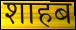
शाहब